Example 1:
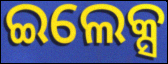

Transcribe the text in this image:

ଇଲେକ୍ସ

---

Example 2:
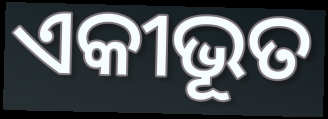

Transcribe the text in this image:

ଏକୀଭୂତ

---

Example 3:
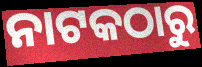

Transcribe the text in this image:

ନାଟକଠାରୁ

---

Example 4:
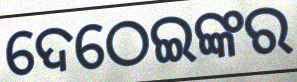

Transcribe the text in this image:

ଦେଠେଇଙ୍କର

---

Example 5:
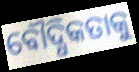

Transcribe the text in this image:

ବୌଦ୍ଧିକତାକୁ